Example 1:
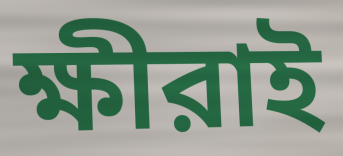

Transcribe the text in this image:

ক্ষীরাই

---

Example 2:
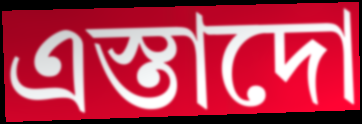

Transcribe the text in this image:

এস্তাদো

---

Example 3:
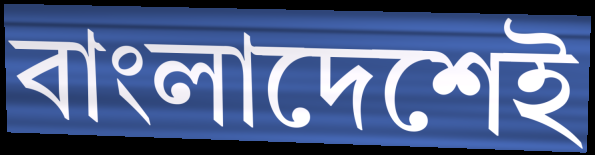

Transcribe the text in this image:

বাংলাদেশেই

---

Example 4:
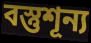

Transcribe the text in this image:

বস্তুশূন্য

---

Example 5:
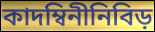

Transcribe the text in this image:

কাদম্বিনীনিবিড়